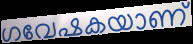
ഗവേഷകയാണ്